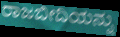
ರಾಜಬೀದಿಯನ್ನು